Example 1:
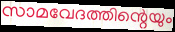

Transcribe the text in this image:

സാമവേദത്തിന്റെയും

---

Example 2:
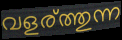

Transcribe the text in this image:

വളര്ത്തുന്ന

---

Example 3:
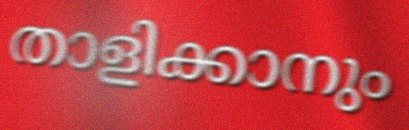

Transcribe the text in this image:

താളിക്കാനും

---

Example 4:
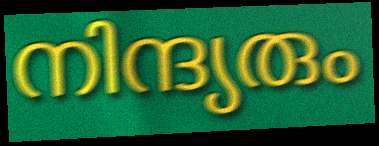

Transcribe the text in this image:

നിന്ദ്യരും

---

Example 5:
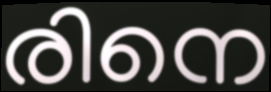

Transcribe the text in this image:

രിനെ